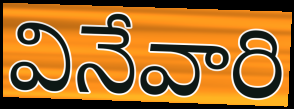
వినేవారి